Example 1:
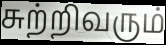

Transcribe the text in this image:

சுற்றிவரும்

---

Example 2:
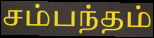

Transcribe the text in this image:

சம்பந்தம்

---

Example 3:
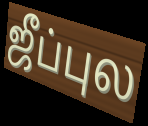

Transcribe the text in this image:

ஜீப்புல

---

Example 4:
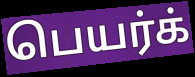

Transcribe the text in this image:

பெயர்க்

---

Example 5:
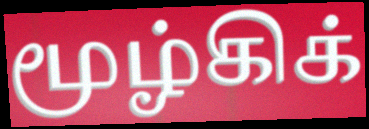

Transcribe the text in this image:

மூழ்கிக்